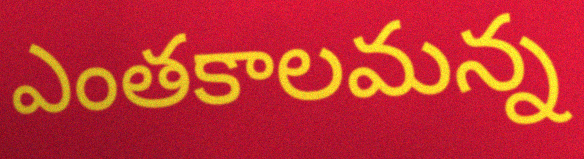
ఎంతకాలమన్న